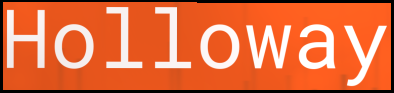
Holloway